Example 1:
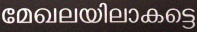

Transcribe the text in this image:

മേഖലയിലാകട്ടെ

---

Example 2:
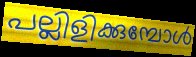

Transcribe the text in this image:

പല്ലിളിക്കുമ്പോൾ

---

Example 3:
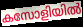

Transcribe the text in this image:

കസോളിയിൽ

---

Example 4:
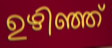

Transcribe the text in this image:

ഉഴിഞ്ഞ്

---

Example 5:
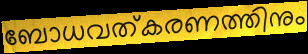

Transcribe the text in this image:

ബോധവത്കരണത്തിനും